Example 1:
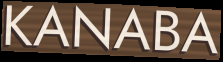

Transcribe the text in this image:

KANABA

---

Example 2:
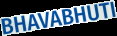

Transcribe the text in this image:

BHAVABHUTI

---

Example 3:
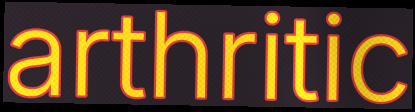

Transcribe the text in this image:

arthritic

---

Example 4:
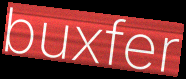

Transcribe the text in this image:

buxfer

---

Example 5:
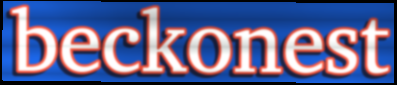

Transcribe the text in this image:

beckonest